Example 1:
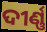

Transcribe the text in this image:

ଦୀର୍ଣ୍ଣ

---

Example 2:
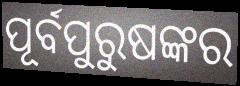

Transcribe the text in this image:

ପୂର୍ବପୁରୁଷଙ୍କର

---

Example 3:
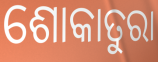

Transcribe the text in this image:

ଶୋକାତୁରା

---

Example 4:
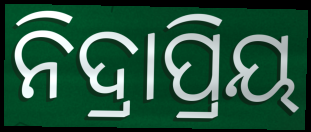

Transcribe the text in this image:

ନିଦ୍ରାପ୍ରିୟ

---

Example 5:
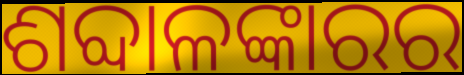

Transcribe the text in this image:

ଶବ୍ଦାଳଙ୍କାରର